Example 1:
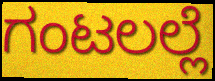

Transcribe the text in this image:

ಗಂಟಲಲ್ಲೆ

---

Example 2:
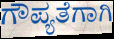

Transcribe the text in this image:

ಗೌಪ್ಯತೆಗಾಗಿ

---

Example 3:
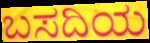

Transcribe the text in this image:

ಬಸದಿಯ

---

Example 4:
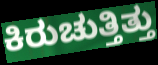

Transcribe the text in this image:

ಕಿರುಚುತ್ತಿತ್ತು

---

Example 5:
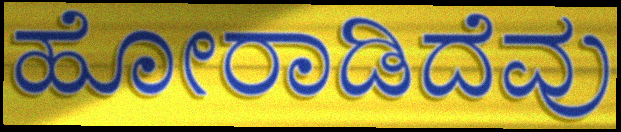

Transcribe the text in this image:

ಹೋರಾಡಿದೆವು